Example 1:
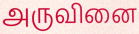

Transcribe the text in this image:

அருவினை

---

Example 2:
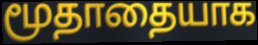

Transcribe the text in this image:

மூதாதையாக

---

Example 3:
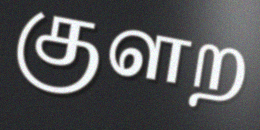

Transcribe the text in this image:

குளற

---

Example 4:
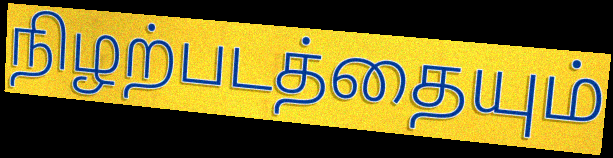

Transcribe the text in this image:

நிழற்படத்தையும்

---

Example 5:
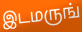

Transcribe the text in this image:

இடமருங்